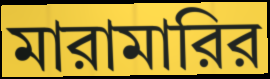
মারামারির